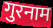
गुरनाम